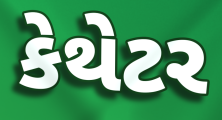
કેથેટર